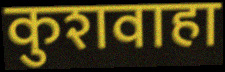
कुशवाहा